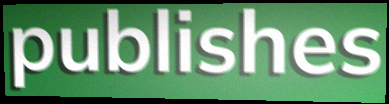
publishes